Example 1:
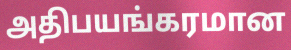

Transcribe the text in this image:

அதிபயங்கரமான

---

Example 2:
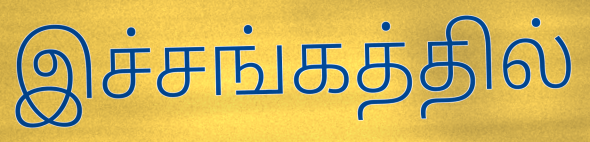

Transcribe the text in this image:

இச்சங்கத்தில்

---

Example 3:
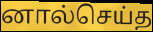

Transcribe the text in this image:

னால்செய்த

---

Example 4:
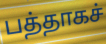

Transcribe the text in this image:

பத்தாகச்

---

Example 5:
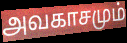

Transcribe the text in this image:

அவகாசமும்